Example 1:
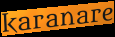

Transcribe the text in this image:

karanare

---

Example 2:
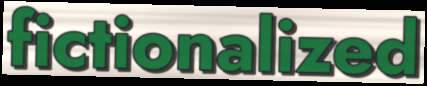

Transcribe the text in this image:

fictionalized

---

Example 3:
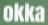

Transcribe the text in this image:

okka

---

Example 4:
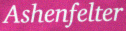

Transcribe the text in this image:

Ashenfelter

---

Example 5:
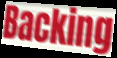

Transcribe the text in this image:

Backing